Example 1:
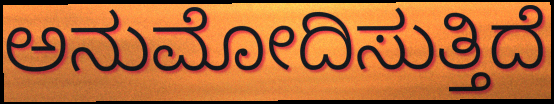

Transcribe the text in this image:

ಅನುಮೋದಿಸುತ್ತಿದೆ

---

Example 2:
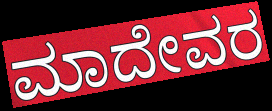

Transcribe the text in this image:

ಮಾದೇವರ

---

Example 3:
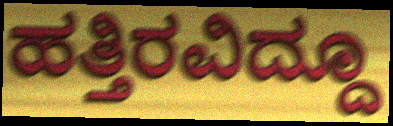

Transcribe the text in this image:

ಹತ್ತಿರವಿದ್ದೂ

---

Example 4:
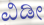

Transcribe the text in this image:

ವಿಡೀ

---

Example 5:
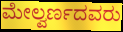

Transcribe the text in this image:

ಮೇಲ್ವರ್ಣದವರು